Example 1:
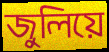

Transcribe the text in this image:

জুলিয়ে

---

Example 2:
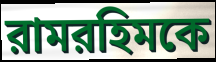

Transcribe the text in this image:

রামরহিমকে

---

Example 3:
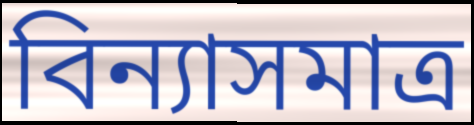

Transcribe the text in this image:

বিন্যাসমাত্র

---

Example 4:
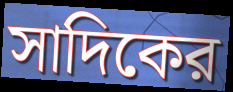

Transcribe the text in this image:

সাদিকের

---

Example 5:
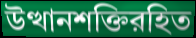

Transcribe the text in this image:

উত্থানশক্তিরহিত